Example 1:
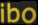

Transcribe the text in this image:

ibo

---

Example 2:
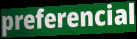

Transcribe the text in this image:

preferencial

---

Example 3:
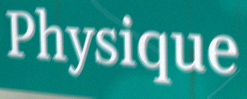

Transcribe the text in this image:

Physique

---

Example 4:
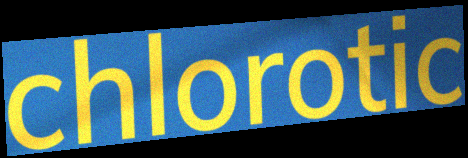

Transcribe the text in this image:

chlorotic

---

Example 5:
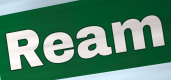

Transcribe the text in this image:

Ream